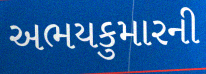
અભયકુમારની